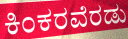
ಕಿಂಕರವೆರಡು